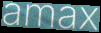
amax